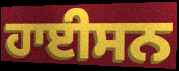
ਹਾਈਸਨ